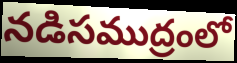
నడిసముద్రంలో